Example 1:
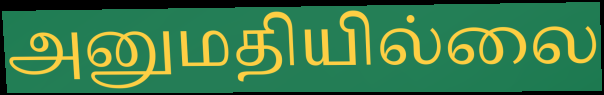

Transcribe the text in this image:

அனுமதியில்லை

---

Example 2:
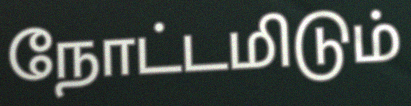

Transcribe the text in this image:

நோட்டமிடும்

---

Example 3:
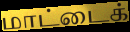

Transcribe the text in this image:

மாட்டைக்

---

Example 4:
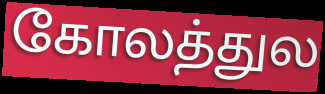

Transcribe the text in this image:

கோலத்துல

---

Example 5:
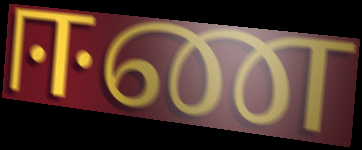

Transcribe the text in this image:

ஈண